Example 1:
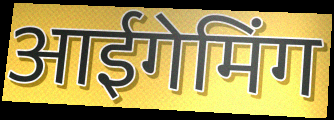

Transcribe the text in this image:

आईगेमिंग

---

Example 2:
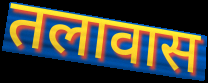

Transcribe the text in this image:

तलावास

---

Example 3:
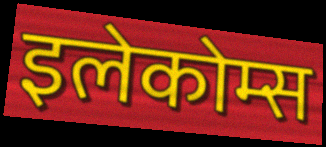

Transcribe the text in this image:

इलेकोम्स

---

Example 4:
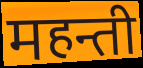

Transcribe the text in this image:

महन्ती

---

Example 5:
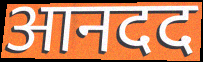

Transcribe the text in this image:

आनदद